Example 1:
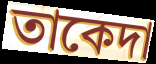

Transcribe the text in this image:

তাকেদা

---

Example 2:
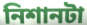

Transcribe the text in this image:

নিশানটা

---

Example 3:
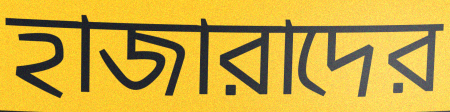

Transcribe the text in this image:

হাজারাদের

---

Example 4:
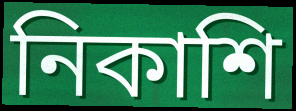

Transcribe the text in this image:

নিকাশি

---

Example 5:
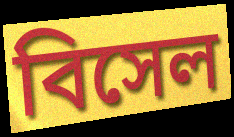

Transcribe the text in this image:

বিসেল